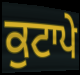
ਕੁਟਾਪੇ